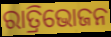
ରାତ୍ରିଭୋଜନ